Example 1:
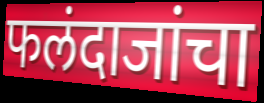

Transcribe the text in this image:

फलंदाजांचा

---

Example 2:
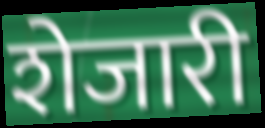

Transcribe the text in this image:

शेजारी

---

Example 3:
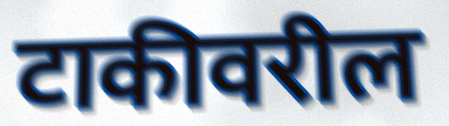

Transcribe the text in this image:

टाकीवरील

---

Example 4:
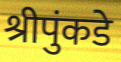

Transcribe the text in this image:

श्रीपुंकडे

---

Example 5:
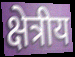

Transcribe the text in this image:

क्षेत्रीय